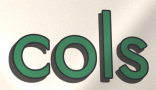
cols